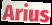
Arius